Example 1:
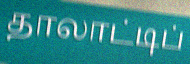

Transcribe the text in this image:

தாலாட்டிப்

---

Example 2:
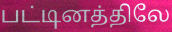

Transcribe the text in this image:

பட்டினத்திலே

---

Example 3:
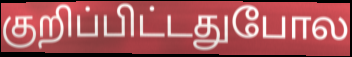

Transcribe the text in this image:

குறிப்பிட்டதுபோல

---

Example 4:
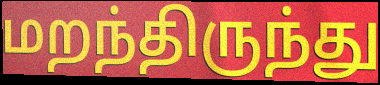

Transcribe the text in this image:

மறந்திருந்து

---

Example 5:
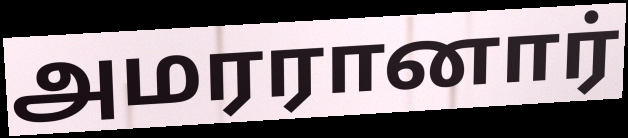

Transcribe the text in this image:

அமரரானார்